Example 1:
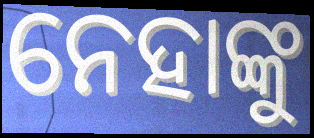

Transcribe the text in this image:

ନେହାଙ୍କୁ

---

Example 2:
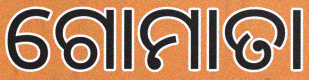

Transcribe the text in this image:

ଗୋମାତା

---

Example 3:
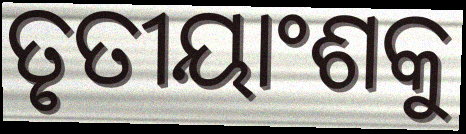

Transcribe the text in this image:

ତୃତୀୟାଂଶକୁ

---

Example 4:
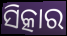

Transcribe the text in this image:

ସିତ୍କାର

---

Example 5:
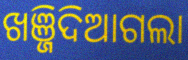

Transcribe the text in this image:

ଖଞ୍ଜିଦିଆଗଲା